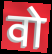
वो